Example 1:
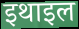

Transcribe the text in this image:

इथाइल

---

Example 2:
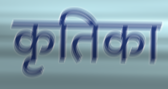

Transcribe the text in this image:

कृतिका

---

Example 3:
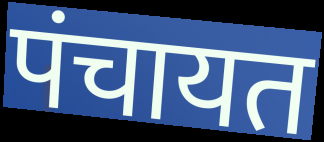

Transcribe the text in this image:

पंचायत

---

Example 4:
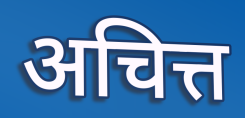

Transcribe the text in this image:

अचित्त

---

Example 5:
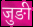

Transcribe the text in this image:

जुङी